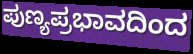
ಪುಣ್ಯಪ್ರಭಾವದಿಂದ